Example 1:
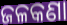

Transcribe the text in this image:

ଜଳକଣା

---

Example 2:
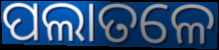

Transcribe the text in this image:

ପଲାତଳେ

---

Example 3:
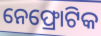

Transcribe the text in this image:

ନେଫ୍ରୋଟିକ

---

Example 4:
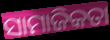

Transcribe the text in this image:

ସାମାଜିକତା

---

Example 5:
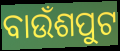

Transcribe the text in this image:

ବାଉଁଶପୁଟ